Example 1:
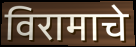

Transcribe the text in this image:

विरामाचे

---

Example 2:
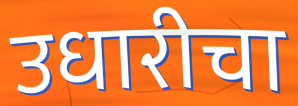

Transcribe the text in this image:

उधारीचा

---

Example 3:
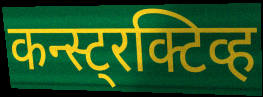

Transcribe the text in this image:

कन्स्ट्रक्टिव्ह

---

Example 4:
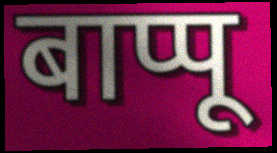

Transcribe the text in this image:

बाप्पू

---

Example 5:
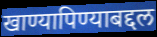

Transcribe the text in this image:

खाण्यापिण्याबद्दल